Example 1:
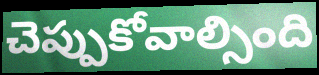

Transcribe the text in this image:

చెప్పుకోవాల్సింది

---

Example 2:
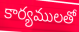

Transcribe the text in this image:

కార్యములతో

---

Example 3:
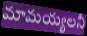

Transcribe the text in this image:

మామయ్యలనీ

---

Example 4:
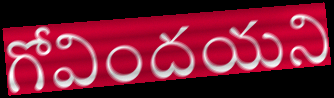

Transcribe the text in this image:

గోవిందయని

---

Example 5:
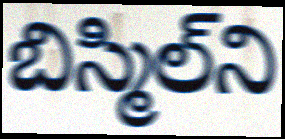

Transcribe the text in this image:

బిస్మిల్‌ని